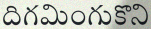
దిగమింగుకొని